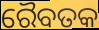
ରୈବତକ